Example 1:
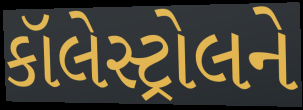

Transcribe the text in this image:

કૉલેસ્ટ્રોલને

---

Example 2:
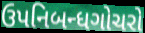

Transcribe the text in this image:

ઉપનિબન્ધગોચરો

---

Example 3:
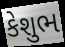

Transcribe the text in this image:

કેશુભ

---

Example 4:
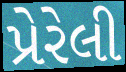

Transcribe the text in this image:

પ્રેરેલી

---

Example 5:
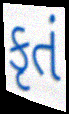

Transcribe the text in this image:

કૃતં